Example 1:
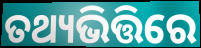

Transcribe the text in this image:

ତଥ୍ୟଭିତ୍ତିରେ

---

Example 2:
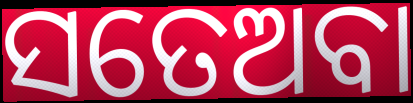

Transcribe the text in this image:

ସତେଅବା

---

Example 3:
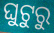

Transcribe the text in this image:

ଘୁଟୁରୁ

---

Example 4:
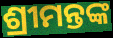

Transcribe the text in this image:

ଶ୍ରୀମନ୍ତଙ୍କ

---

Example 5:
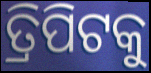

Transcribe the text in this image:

ତ୍ରିପିଟକୁ